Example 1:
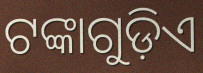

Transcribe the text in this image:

ଟଙ୍କାଗୁଡ଼ିଏ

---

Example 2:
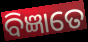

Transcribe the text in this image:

ବିଜ୍ଞାତେ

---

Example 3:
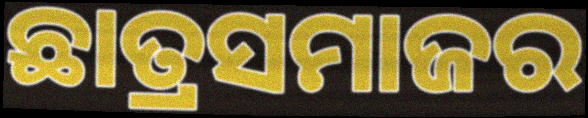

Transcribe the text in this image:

ଛାତ୍ରସମାଜର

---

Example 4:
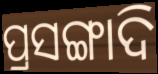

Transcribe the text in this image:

ପ୍ରସଙ୍ଗାଦି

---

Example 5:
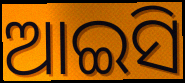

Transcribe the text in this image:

ଆଇସି